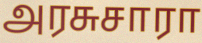
அரசுசாரா